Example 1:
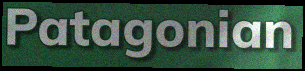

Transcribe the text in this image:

Patagonian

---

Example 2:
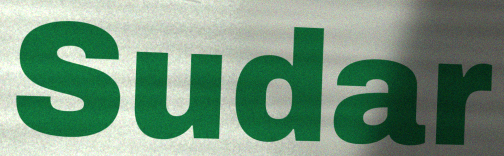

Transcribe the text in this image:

Sudar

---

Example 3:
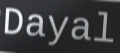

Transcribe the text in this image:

Dayal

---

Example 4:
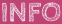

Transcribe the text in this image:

INFO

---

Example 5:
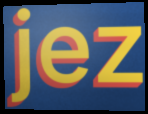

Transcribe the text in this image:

jez